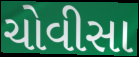
ચોવીસા